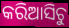
କରିଆସିଚୁ